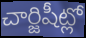
చార్జిషీట్లో